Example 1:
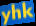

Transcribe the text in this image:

yhk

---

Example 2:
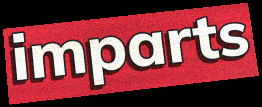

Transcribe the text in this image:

imparts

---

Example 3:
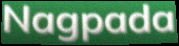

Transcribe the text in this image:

Nagpada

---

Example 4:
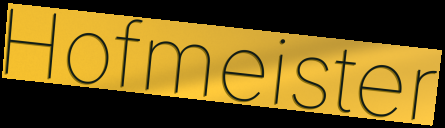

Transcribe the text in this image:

Hofmeister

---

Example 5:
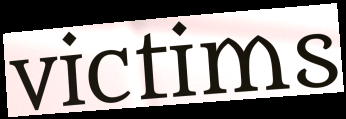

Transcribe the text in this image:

victims